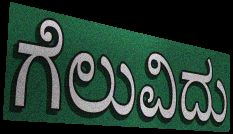
ಗೆಲುವಿದು